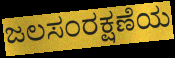
ಜಲಸಂರಕ್ಷಣೆಯ